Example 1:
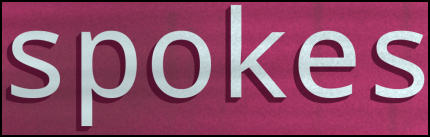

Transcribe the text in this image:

spokes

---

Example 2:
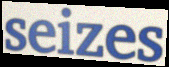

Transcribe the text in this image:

seizes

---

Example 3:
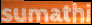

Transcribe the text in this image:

sumathi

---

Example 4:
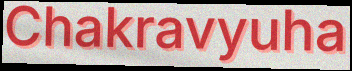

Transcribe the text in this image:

Chakravyuha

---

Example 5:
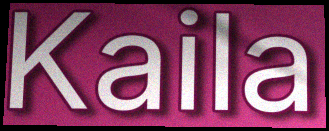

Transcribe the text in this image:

Kaila